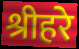
श्रीहरे